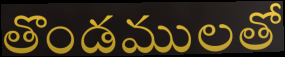
తొండములతో